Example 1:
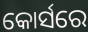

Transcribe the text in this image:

କୋର୍ସରେ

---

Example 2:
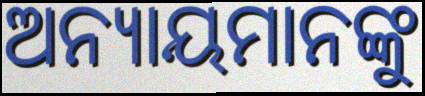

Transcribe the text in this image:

ଅନ୍ୟାୟମାନଙ୍କୁ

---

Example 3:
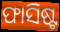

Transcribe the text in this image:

ଫାସିଷ୍ଟ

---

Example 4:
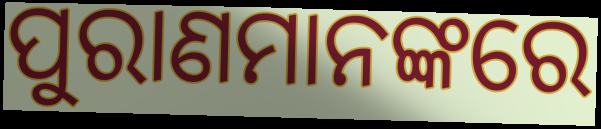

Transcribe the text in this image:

ପୁରାଣମାନଙ୍କରେ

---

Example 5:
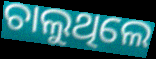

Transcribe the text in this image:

ଚାଲୁଥିଲେ